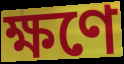
ক্ষণে